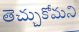
తెచ్చుకోమని